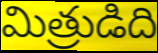
మిత్రుడిది